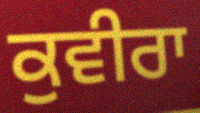
ਕੁਵੀਰਾ